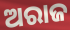
ଅରାଜ